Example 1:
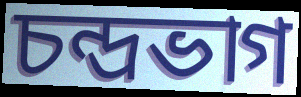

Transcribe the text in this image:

চন্দ্রভাগ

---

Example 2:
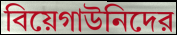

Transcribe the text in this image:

বিয়েগাউনিদের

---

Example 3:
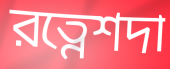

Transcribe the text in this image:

রত্নেশদা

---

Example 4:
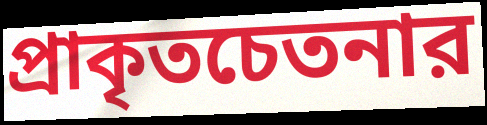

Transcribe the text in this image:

প্রাকৃতচেতনার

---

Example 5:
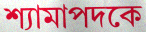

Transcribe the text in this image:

শ্যামাপদকে